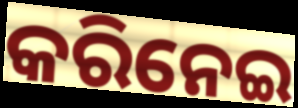
କରିନେଇ